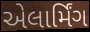
એલાર્મિંગ